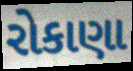
રોકાણા